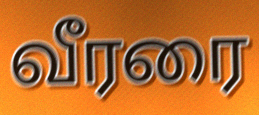
வீரரை